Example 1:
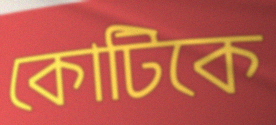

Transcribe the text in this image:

কোটিকে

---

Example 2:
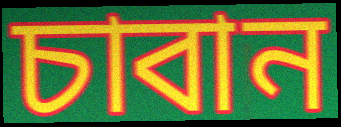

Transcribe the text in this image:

চাবান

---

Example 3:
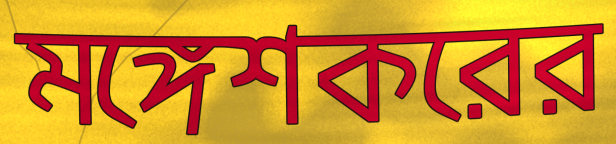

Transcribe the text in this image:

মঙ্গেশকরের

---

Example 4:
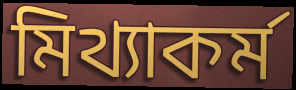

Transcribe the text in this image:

মিথ্যাকর্ম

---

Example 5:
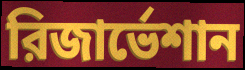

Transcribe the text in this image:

রিজার্ভেশান